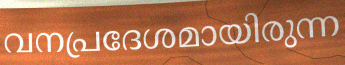
വനപ്രദേശമായിരുന്ന